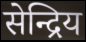
सेन्द्रिय